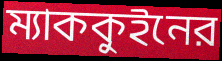
ম্যাককুইনের